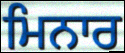
ਮਿਨਾਰ